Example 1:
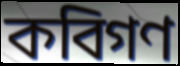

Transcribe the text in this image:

কবিগণ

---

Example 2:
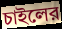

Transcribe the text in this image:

চাইলের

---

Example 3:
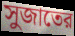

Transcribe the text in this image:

সুজাতের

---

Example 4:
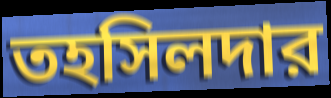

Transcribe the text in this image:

তহসিলদার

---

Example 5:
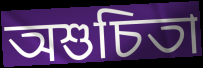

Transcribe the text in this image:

অশুচিতা